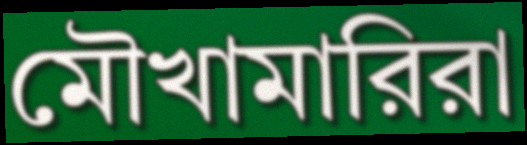
মৌখামারিরা